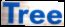
Tree